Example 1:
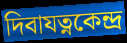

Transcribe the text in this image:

দিবাযত্নকেন্দ্র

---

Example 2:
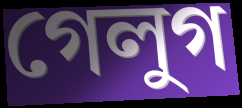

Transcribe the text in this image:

গেলুগ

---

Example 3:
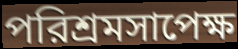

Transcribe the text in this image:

পরিশ্রমসাপেক্ষ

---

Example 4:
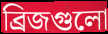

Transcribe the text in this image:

ব্রিজগুলো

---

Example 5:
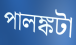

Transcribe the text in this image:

পালঙ্কটা